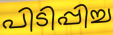
പിടിപ്പിച്ച